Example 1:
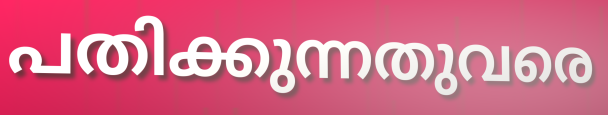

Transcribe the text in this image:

പതിക്കുന്നതുവരെ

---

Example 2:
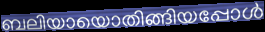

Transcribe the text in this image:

ബലിയായൊതിങ്ങിയപ്പോൾ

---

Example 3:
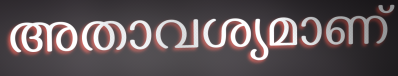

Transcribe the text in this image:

അതാവശ്യമാണ്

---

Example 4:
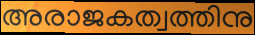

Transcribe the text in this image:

അരാജകത്വത്തിനു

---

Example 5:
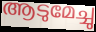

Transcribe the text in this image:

ആടുമേച്ചു